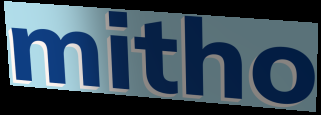
mitho